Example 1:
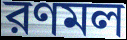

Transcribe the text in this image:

রণমল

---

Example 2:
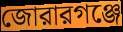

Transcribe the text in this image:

জোরারগঞ্জে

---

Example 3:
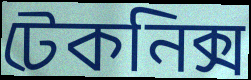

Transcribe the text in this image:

টেকনিক্স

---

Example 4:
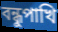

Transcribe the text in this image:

বন্ধুপাখি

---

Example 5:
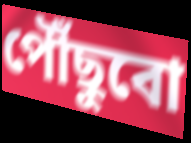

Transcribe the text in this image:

পৌঁছুবো